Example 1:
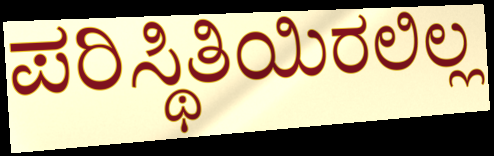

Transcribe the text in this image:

ಪರಿಸ್ಥಿತಿಯಿರಲಿಲ್ಲ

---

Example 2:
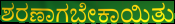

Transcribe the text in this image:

ಶರಣಾಗಬೇಕಾಯಿತು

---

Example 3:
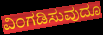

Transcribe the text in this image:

ವಿಂಗಡಿಸುವುದೂ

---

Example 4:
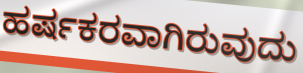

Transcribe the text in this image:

ಹರ್ಷಕರವಾಗಿರುವುದು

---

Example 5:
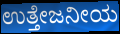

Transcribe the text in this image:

ಉತ್ತೇಜನೀಯ